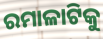
ରମାଳାଟିକୁ